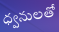
ధ్వనులతో